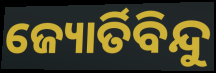
ଜ୍ୟୋର୍ତିବିନ୍ଦୁ